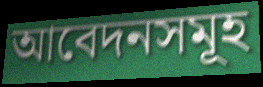
আবেদনসমূহ